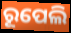
ରୂପେଲି